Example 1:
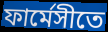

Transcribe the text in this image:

ফার্মেসীতে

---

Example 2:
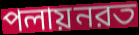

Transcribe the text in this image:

পলায়নরত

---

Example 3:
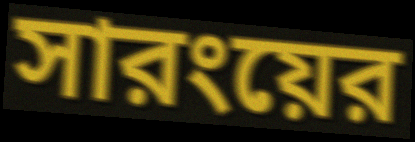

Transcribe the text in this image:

সারংয়ের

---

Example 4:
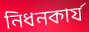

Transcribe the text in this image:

নিধনকার্য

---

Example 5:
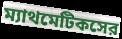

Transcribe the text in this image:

ম্যাথমেটিকসের